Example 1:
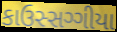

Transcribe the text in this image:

કાઉસ્સગ્ગીયા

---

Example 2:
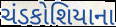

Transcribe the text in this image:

ચંડકોશિયાના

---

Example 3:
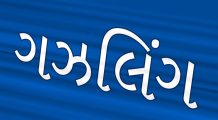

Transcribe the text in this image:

ગઝલિંગ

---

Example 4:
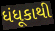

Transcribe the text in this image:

ધંધૂકાથી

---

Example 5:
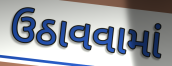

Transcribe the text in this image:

ઉઠાવવામાં